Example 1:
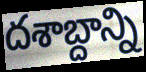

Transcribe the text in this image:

దశాబ్దాన్ని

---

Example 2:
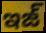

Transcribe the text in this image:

ఇజ్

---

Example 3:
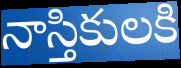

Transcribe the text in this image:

నాస్తికులకి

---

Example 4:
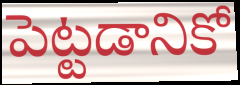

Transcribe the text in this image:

పెట్టడానికో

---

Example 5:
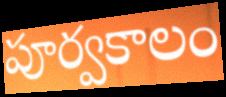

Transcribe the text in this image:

పూర్వకాలం